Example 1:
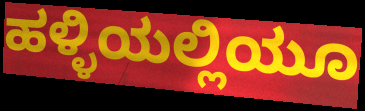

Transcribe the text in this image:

ಹಳ್ಳಿಯಲ್ಲಿಯೂ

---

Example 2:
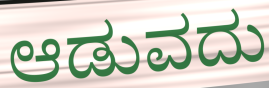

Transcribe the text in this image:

ಆಡುವದು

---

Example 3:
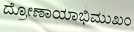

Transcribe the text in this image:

ದ್ರೋಣಾಯಾಭಿಮುಖಂ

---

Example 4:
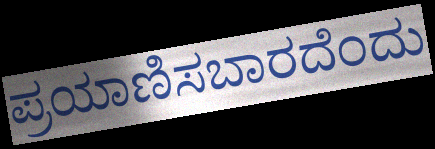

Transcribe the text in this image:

ಪ್ರಯಾಣಿಸಬಾರದೆಂದು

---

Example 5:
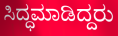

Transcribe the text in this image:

ಸಿದ್ಧಮಾಡಿದ್ದರು